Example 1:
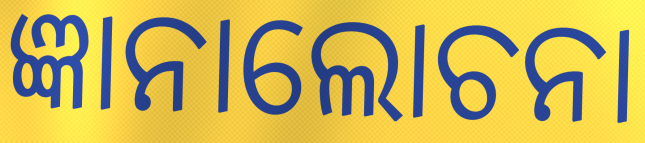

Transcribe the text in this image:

ଜ୍ଞାନାଲୋଚନା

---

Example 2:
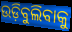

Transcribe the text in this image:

ଉଡ଼ିବୁଲିବାକୁ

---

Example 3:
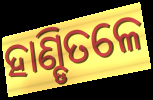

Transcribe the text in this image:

ହାଣ୍ଡିତଳେ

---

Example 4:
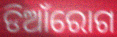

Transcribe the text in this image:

ଡିଆଁରୋଗ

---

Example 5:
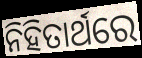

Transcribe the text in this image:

ନିହିତାର୍ଥରେ